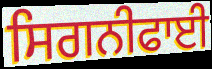
ਸਿਗਨੀਫਾਈ